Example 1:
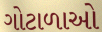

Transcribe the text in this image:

ગોટાળાઓ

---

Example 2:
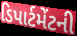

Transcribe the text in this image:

ડિપાર્ટમેંટની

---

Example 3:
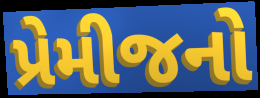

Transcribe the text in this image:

પ્રેમીજનો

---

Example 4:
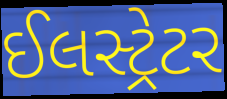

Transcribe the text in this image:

ઈલસ્ટ્રેટર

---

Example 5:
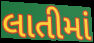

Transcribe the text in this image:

લાતીમાં